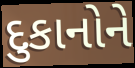
દુકાનોને